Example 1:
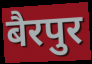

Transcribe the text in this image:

बैरपुर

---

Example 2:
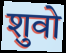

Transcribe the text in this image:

शुवो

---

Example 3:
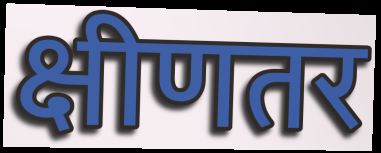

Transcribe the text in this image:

क्षीणतर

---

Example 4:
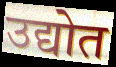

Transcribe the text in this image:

उद्योत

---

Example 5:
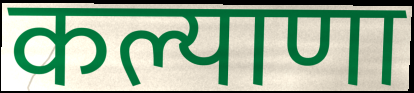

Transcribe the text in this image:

कल्याणा